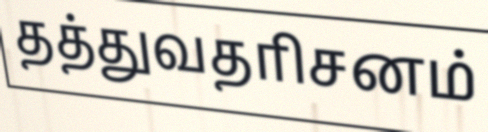
தத்துவதரிசனம்